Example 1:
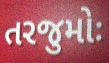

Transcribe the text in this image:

તરજુમોઃ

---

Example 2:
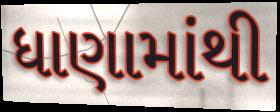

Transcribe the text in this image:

ધાણામાંથી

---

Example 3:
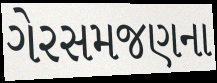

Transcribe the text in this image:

ગેરસમજણના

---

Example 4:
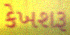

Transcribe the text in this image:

કેખશરૂ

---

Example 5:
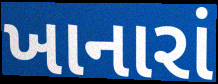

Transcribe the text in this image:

ખાનારાં